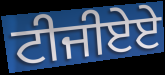
ਟੀਜੀਏਏ